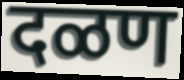
दळण